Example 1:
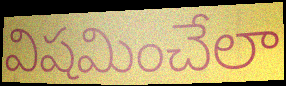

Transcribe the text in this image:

విషమించేలా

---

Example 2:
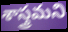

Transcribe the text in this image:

శాస్త్రమని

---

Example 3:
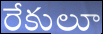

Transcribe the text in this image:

రేకులూ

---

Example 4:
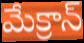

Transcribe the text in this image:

మేక్రాన్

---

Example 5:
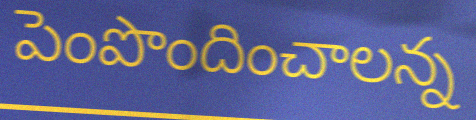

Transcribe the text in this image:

పెంపొందించాలన్న